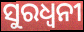
ସୁରଧ୍ୱନୀ